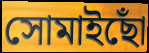
সোমাইছোঁ